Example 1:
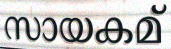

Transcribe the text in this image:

സായകമ്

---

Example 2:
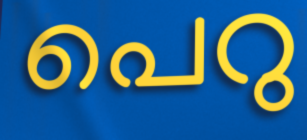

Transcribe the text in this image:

പെറു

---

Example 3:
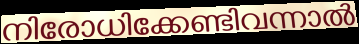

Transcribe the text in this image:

നിരോധിക്കേണ്ടിവന്നാൽ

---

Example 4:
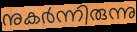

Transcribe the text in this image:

നുകർന്നിരുന്നു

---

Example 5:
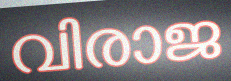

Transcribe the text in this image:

വിരാജ